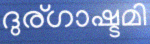
ദുര്ഗാഷ്ടമി